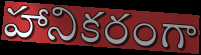
హానికరంగా